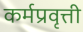
कर्मप्रवृत्ती